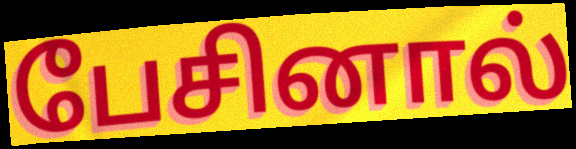
பேசினால்